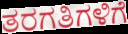
ತರಗತಿಗಳಿಗೆ